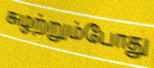
சுழற்றும்போது